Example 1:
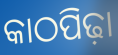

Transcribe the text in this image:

କାଠପିଢ଼ା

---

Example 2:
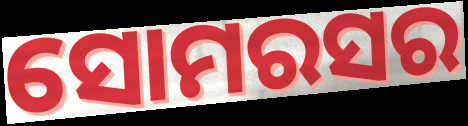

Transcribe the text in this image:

ସୋମରସର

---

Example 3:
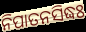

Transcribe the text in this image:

ନିପାତନସିଦ୍ଧଃ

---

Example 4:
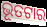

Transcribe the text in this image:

ଭୂତଟାର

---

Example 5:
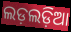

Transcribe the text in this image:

ଲଡ଼ଲଡ଼ିଆ